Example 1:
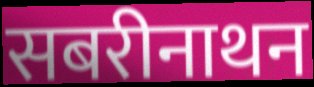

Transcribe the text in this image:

सबरीनाथन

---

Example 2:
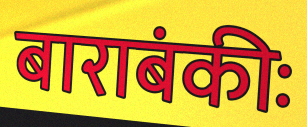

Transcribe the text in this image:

बाराबंकीः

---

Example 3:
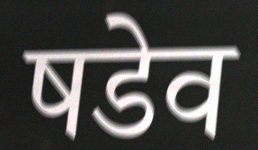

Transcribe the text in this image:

षडेव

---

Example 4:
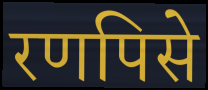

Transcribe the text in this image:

रणपिसे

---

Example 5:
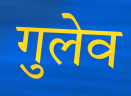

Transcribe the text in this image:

गुलेव